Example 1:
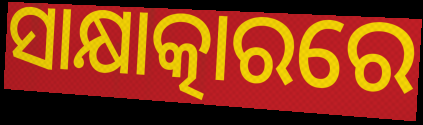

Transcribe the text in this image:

ସାକ୍ଷାତ୍କାରରେ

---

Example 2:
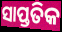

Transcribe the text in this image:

ସାପ୍ତତିକ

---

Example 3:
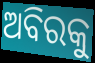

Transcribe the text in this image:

ଅବିରକୁ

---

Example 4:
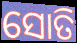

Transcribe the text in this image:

ସୋତି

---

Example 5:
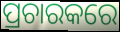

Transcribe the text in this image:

ପ୍ରଚାରକରେ